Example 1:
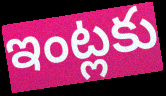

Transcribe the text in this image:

ఇంట్లకు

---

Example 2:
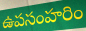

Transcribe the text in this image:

ఉపసంహరిం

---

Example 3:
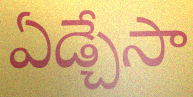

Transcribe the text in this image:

ఏడ్చేసా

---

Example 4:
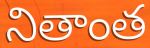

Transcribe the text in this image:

నితాంత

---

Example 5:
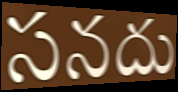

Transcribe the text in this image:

సనదు